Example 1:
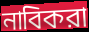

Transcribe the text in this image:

নাবিকরা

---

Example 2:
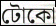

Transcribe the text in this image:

টোকো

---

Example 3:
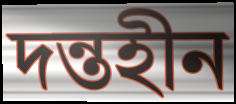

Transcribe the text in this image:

দন্তহীন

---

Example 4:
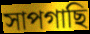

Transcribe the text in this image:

সাপগাছি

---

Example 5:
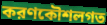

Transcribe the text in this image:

করণকৌশলগত